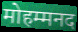
मोहम्मनद